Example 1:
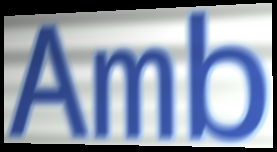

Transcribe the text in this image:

Amb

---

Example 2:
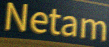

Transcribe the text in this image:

Netam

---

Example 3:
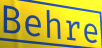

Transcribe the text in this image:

Behre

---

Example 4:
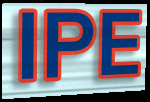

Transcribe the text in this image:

IPE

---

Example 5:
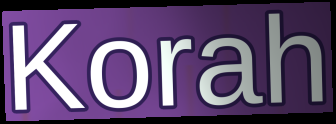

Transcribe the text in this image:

Korah